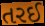
તરઈ